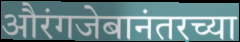
औरंगजेबानंतरच्या